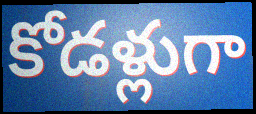
కోడళ్లుగా